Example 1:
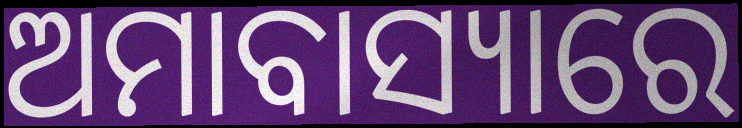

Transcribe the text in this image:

ଅମାବାସ୍ୟାରେ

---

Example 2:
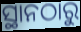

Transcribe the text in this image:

ସ୍ଥାନଠାରୁ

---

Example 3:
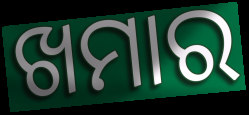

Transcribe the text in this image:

ଖମାର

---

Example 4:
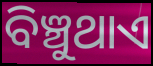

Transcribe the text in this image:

ବିଞ୍ଚୁଥାଏ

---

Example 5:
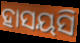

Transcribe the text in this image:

ହାସୟସି